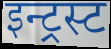
इन्ट्रस्ट